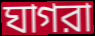
ঘাগরা